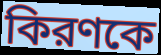
কিরণকে